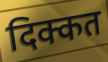
दिक्कत